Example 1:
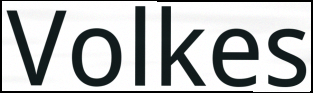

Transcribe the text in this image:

Volkes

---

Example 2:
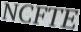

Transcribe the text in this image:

NCFTE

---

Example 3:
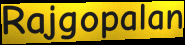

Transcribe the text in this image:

Rajgopalan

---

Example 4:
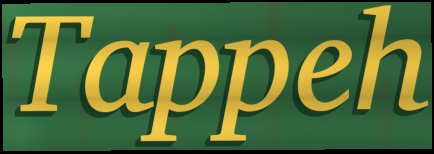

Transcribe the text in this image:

Tappeh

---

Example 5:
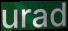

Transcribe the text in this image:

urad